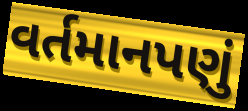
વર્તમાનપણું